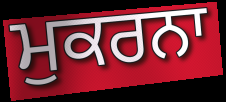
ਮੁਕਰਨਾ